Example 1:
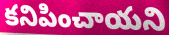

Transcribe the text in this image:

కనిపించాయని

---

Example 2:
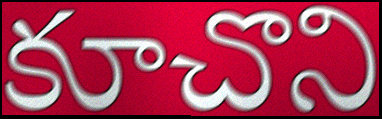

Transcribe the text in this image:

కూచొని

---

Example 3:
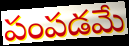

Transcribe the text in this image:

పంపడమే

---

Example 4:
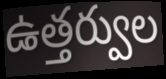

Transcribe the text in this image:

ఉత్తర్వుల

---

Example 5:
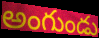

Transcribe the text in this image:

అంగుండు